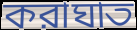
করাঘাত